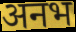
अनभ